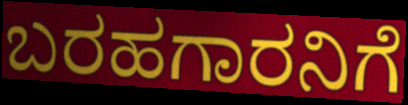
ಬರಹಗಾರನಿಗೆ